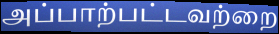
அப்பாற்பட்டவற்றை